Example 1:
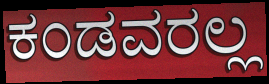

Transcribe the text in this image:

ಕಂಡವರಲ್ಲ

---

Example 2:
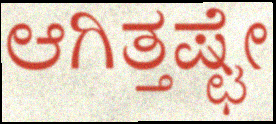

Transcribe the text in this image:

ಆಗಿತ್ತಷ್ಟೇ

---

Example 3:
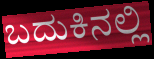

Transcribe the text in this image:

ಬದುಕಿನಲ್ಲಿ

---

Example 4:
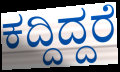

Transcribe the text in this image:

ಕದ್ದಿದ್ದರೆ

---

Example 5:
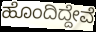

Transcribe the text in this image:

ಹೊಂದಿದ್ದೇವೆ